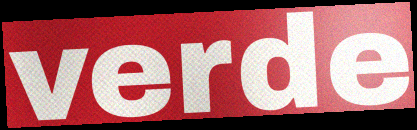
verde